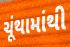
ચૂંથામાંથી